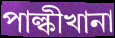
পাল্কীখানা